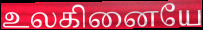
உலகினையே